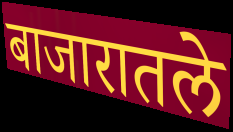
बाजारातले